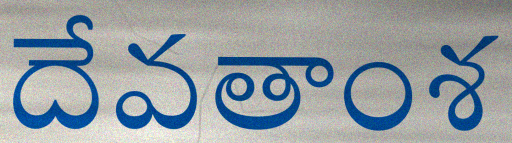
దేవతాంశ